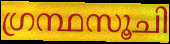
ഗ്രന്ഥസൂചി